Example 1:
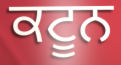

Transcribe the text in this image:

ਕਟੂਨ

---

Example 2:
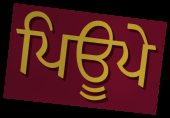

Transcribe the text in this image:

ਪਿਊਪੇ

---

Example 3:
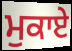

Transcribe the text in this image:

ਮੁਕਾਏ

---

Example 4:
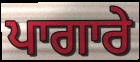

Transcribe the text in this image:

ਪਾਗਾਰੇ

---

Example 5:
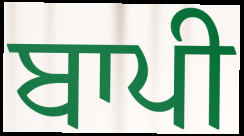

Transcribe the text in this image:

ਬਾਪੀ